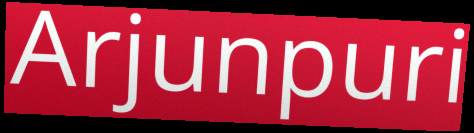
Arjunpuri